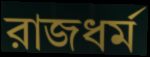
রাজধর্ম